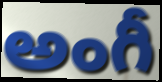
అంగీ